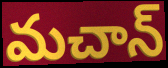
మచాన్